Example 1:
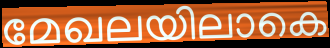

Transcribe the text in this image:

മേഖലയിലാകെ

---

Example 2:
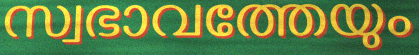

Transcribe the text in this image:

സ്വഭാവത്തേയും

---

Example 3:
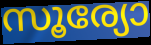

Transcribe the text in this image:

സൂര്യോ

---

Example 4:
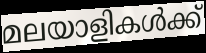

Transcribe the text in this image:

മലയാളികൾക്ക്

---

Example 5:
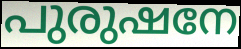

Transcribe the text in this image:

പുരുഷനേ